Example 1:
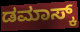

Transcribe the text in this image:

ಡಮಾಸ್ಕ್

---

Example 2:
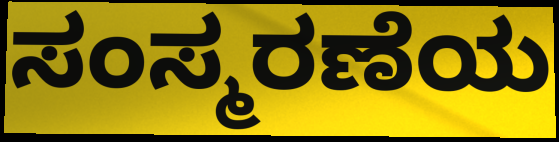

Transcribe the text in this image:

ಸಂಸ್ಮರಣೆಯ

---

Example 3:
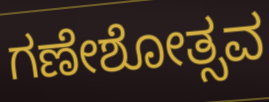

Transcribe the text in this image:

ಗಣೇಶೋತ್ಸವ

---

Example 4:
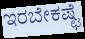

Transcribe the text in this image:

ಇರಬೇಕಷ್ಟೆ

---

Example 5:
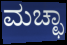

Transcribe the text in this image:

ಮಚ್ಛಾ